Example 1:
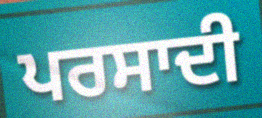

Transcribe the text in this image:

ਪਰਸਾਦੀ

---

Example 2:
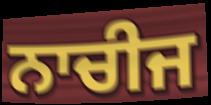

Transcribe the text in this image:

ਨਾਚੀਜ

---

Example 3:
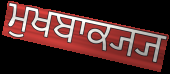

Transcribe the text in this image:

ਮੁਖਬਾਕ੍ਯ੍ਯ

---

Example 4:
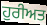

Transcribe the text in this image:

ਹੁਰੀਅਤ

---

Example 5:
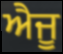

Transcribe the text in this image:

ਐਜੂ